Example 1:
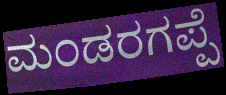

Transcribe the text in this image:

ಮಂಡರಗಪ್ಪೆ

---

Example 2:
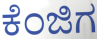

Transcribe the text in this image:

ಕೆಂಜಿಗ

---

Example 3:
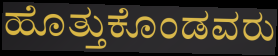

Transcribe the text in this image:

ಹೊತ್ತುಕೊಂಡವರು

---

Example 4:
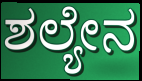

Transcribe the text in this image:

ಶಲ್ಯೇನ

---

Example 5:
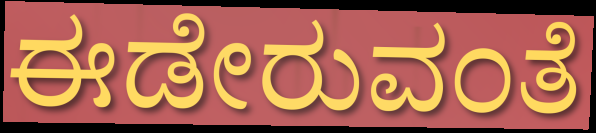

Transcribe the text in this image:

ಈಡೇರುವಂತೆ